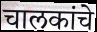
चालकांचे